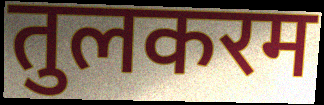
तुलकरम